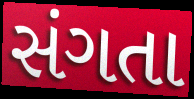
સંગતા